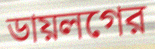
ডায়লগের